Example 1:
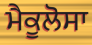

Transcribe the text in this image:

ਮੈਕੂਲੋਸਾ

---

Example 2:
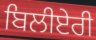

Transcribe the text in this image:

ਬਿਲੀਏਰੀ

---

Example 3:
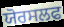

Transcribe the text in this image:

ਯੋਰਸਲਫ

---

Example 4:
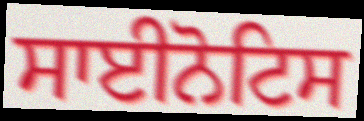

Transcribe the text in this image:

ਸਾਈਨੋਟਿਸ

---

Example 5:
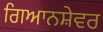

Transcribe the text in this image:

ਗਿਆਨਸ਼ੇਵਰ